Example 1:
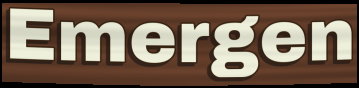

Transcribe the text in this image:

Emergen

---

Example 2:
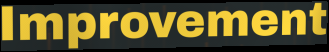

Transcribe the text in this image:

Improvement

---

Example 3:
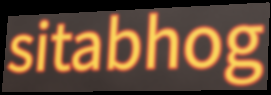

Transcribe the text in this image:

sitabhog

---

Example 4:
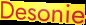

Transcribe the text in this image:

Desonie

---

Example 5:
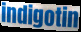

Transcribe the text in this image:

indigotin